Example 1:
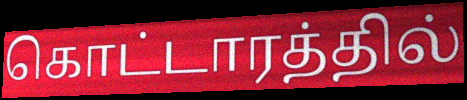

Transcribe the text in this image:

கொட்டாரத்தில்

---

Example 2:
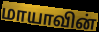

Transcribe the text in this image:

மாயாவின்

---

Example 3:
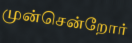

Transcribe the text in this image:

முன்சென்றோர்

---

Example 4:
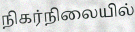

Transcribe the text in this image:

நிகர்நிலையில்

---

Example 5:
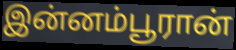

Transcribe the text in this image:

இன்னம்பூரான்